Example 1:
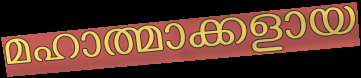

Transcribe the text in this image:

മഹാത്മാക്കളായ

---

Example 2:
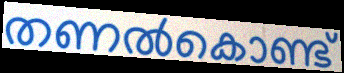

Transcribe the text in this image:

തണൽകൊണ്ട്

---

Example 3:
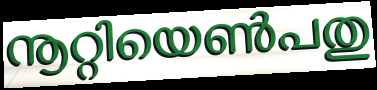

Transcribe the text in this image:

നൂറ്റിയെൺപതു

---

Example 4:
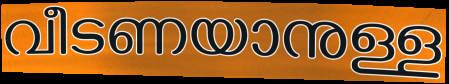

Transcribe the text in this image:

വീടണയാനുള്ള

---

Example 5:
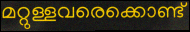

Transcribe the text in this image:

മറ്റുള്ളവരെക്കൊണ്ട്